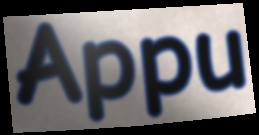
Appu